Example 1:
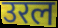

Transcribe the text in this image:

उरल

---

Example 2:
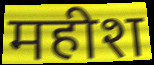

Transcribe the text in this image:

महीश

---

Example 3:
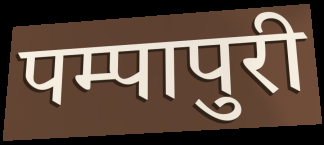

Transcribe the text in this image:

पम्पापुरी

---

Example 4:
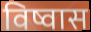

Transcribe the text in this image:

विष्वास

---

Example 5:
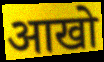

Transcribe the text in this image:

आखो